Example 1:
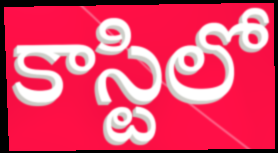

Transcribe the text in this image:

కాస్టిలో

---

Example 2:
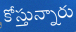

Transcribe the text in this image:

కోస్తున్నారు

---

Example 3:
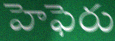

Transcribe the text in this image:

హెఫెరు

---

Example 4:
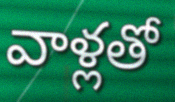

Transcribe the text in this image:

వాళ్లతో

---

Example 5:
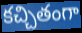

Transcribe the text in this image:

కచ్చితంగా